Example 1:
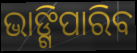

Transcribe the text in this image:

ଭାଙ୍ଗିପାରିବ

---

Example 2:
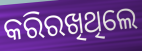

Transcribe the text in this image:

କରିରଖିଥିଲେ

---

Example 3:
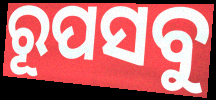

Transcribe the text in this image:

ରୂପସବୁ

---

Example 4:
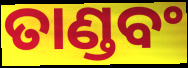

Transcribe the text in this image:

ତାଣ୍ଡବଂ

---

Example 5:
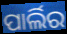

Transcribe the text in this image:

ପାର୍ଲିର